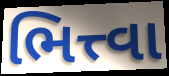
ભિત્ત્વા